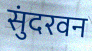
सुंदरवन